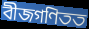
বীজগণিতত